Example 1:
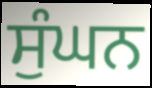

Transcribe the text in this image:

ਸੁੰਘਨ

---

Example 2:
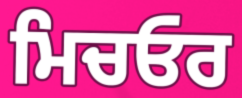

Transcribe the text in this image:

ਮਿਚਓਰ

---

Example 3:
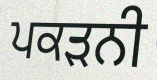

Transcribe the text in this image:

ਪਕੜਨੀ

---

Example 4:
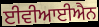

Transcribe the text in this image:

ਈਵੀਆਈਐਨ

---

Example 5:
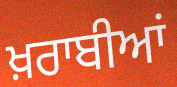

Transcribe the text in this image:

ਖ਼ਰਾਬੀਆਂ